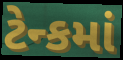
ટેન્કમાં